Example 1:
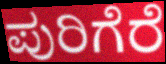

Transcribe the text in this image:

ಪುರಿಗೆರೆ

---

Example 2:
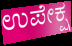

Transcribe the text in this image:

ಉಪೇಕ್ಷ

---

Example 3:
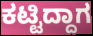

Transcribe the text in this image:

ಕಟ್ಟಿದ್ದಾಗ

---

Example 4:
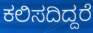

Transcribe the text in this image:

ಕಲಿಸದಿದ್ದರೆ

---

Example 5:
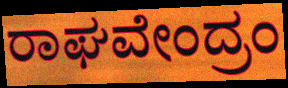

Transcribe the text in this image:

ರಾಘವೇಂದ್ರಂ